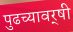
पुढच्यावर्षी